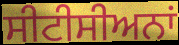
ਸੀਟੀਸੀਅਨਾਂ